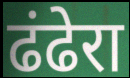
ढंढेरा